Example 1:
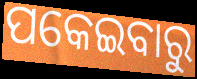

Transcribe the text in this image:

ପକେଇବାରୁ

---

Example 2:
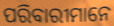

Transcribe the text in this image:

ପରିବାରୀମାନେ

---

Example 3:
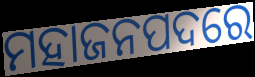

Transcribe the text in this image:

ମହାଜନପଦରେ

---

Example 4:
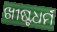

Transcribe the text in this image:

ଖୀଷ୍ଟଧର୍ମ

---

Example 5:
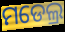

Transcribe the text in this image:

ମଡେଲ୍ର